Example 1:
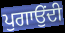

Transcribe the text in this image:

ਪੁਗਾਉਂਦੀ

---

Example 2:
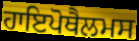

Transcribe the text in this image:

ਹਾਇਪੋਥੈਲਮਸ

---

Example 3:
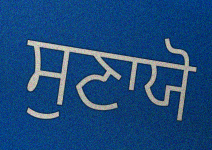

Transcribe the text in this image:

ਸੁਣਾਯੋ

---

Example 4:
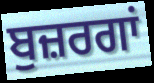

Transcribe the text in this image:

ਬੁਜ਼ਰਗਾਂ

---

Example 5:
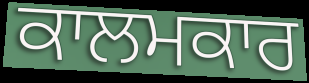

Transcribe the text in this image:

ਕਾਲਮਕਾਰ